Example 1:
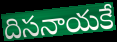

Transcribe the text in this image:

దిసనాయకే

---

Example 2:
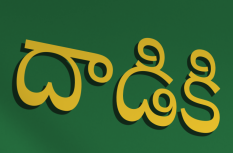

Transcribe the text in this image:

దాడికి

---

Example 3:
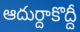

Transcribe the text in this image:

ఆదుర్దాకొద్దీ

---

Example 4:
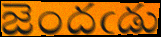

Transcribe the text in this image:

జెందఁడు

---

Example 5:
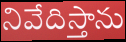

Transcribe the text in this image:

నివేదిస్తాను